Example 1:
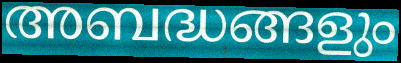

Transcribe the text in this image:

അബദ്ധങ്ങളും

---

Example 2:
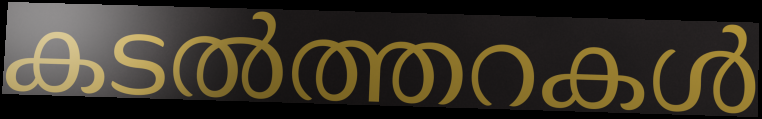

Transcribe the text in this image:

കടൽത്തറകൾ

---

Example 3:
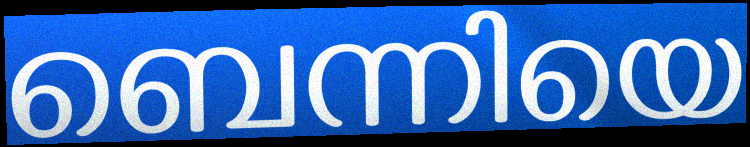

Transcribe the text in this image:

ബെന്നിയെ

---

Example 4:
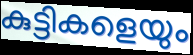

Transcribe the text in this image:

കുട്ടികളെയും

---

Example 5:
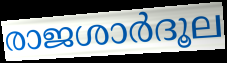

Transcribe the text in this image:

രാജശാർദൂല